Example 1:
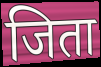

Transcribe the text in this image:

जिता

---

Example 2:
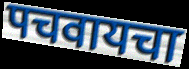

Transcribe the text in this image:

पचवायचा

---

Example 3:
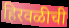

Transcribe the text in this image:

हिरवळीची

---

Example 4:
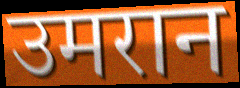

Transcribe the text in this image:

उमरान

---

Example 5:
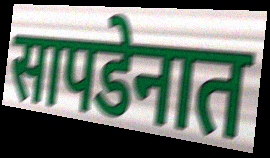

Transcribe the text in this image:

सापडेनात